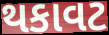
થકાવટ